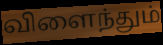
விளைந்தும்